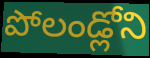
పోలండ్లోని